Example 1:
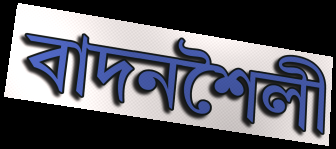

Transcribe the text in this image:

বাদনশৈলী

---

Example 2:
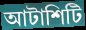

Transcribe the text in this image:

আটাশিটি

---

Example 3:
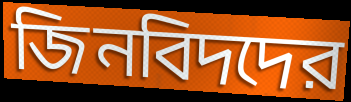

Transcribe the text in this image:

জিনবিদদের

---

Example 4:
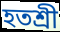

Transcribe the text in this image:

হতশ্রী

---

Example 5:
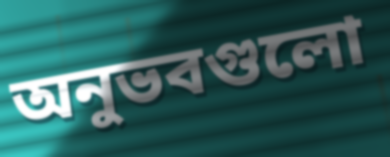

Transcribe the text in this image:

অনুভবগুলো